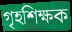
গৃহশিক্ষক